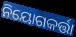
ନିୟୋଗକର୍ତ୍ତା